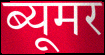
ब्यूमर